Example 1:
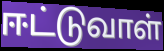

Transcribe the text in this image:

ஈட்டுவாள்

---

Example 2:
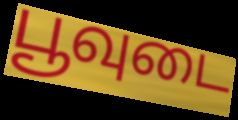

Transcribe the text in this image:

பூவுடை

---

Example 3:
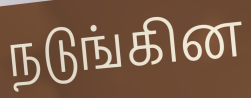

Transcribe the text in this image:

நடுங்கின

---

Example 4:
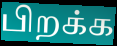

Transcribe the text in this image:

பிறக்க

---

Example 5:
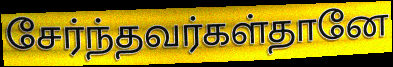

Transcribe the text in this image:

சேர்ந்தவர்கள்தானே